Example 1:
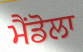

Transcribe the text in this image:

ਮੈਂਡੋਲਾ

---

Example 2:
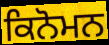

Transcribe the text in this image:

ਕਿਨੋਮਨ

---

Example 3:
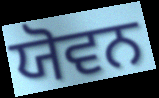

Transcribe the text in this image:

ਯੋਵਨ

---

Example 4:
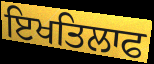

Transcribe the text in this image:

ਇਖਤਿਲਾਫ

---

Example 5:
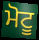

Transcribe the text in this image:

ਮੋਟੂ